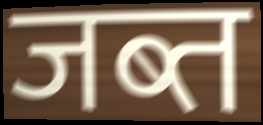
जब्त